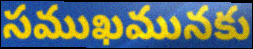
సముఖమునకు